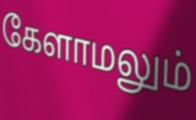
கேளாமலும்